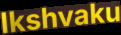
Ikshvaku